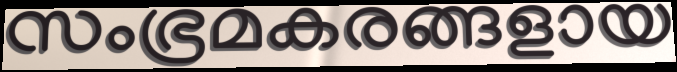
സംഭ്രമകരങ്ങളായ